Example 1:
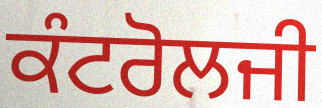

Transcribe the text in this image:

ਕੰਟਰੋਲਜੀ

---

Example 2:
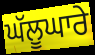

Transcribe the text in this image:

ਘੱਲੂਘਾਰੇ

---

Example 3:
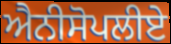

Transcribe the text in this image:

ਐਨੀਸੋਪਲੀਏ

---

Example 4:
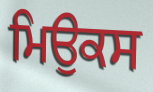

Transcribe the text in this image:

ਮਿਉਕਸ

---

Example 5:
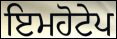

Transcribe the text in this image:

ਇਮਹੋਟੇਪ